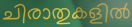
ചിരാതുകളിൽ